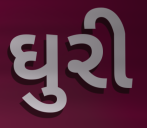
ઘુરી